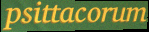
psittacorum